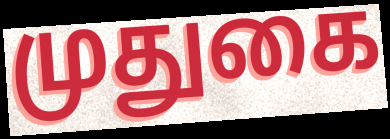
முதுகை